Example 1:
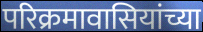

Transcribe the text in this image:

परिक्रमावासियांच्या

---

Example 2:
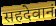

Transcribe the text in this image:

सहदेवानं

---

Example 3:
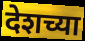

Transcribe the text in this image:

देशच्या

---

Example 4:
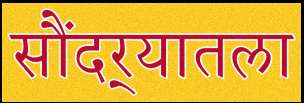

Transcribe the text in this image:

सौंदर्यातला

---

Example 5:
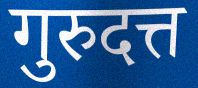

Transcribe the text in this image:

गुरुदत्त